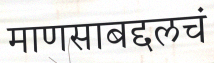
माणसाबद्दलचं